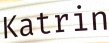
Katrin